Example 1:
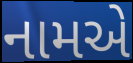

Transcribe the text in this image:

નામએ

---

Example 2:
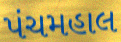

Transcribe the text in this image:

પંચમહાલ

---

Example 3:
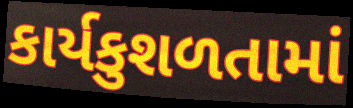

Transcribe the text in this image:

કાર્યકુશળતામાં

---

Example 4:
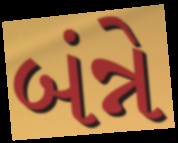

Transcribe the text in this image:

બંન્ને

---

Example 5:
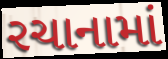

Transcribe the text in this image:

રચાનામાં